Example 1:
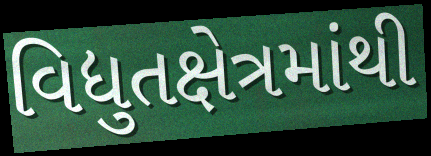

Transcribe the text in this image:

વિદ્યુતક્ષેત્રમાંથી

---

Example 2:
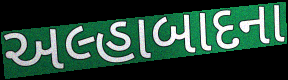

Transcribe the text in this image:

અલ્હાબાદના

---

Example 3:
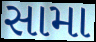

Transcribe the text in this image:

સામા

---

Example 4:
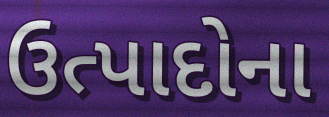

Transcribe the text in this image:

ઉત્પાદોના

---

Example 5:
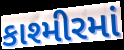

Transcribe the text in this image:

કાશ્મીરમાં